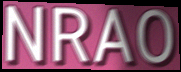
NRAO